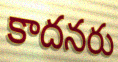
కాదనరు